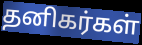
தனிகர்கள்